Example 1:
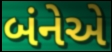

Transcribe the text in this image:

બંનેએ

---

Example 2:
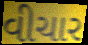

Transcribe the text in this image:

વીચાર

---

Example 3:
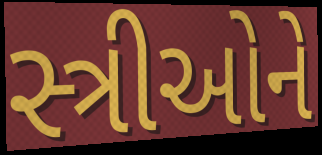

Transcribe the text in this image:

સ્ત્રીઓને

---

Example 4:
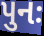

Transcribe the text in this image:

પુનઃ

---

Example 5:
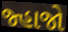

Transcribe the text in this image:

જ્હાજો